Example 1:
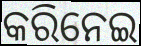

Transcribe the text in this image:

କରିନେଇ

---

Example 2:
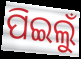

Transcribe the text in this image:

ପିଇଲୁଁ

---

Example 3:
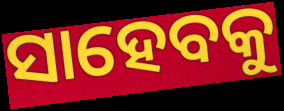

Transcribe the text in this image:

ସାହେବକୁ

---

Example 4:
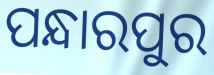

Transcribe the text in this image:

ପନ୍ଧାରପୁର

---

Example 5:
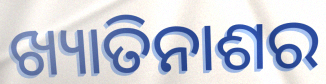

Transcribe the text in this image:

ଖ୍ୟାତିନାଶର